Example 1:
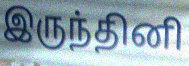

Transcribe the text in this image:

இருந்தினி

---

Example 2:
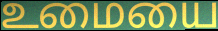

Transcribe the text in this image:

உமையை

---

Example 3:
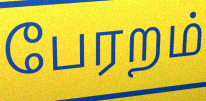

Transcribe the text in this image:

பேரறம்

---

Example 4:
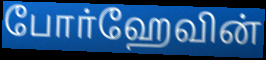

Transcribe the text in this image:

போர்ஹேவின்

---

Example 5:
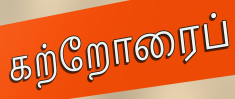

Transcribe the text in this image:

கற்றோரைப்